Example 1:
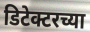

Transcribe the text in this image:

डिटेक्टरच्या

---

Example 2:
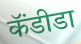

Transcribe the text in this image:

कॅंडीडा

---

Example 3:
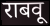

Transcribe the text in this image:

राबवू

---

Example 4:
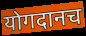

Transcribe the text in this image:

योगदानच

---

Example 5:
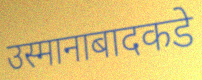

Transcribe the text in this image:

उस्मानाबादकडे